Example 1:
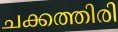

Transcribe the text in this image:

ചക്കത്തിരി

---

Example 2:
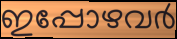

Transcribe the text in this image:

ഇപ്പോഴവർ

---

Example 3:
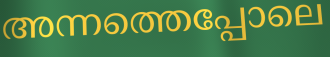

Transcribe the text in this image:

അന്നത്തെപ്പോലെ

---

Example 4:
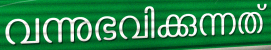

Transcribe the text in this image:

വന്നുഭവിക്കുന്നത്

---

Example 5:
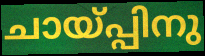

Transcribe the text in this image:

ചായ്പ്പിനു